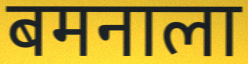
बमनाला